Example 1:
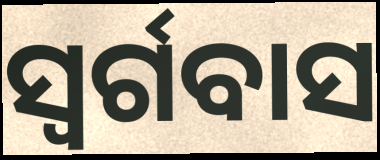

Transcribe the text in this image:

ସ୍ଵର୍ଗବାସ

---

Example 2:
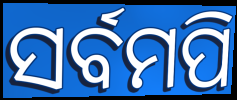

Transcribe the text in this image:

ସର୍ବମପି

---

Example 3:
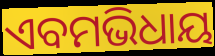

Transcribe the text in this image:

ଏବମଭିଧାୟ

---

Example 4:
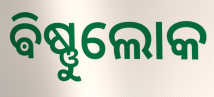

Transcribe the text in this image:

ଵିଷ୍ଣୁଲୋକ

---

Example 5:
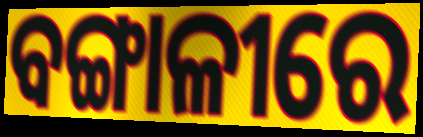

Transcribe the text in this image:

ବଙ୍ଗାଳୀରେ